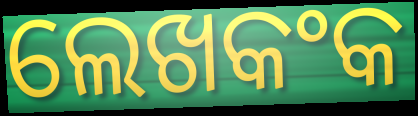
ଲେଖକଂକ